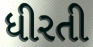
ધીરતી